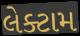
લેક્ટામ